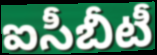
ఐసీబీటీ